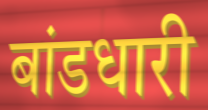
बांडधारी